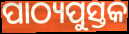
ପାଠ୍ୟପୁସ୍ତକ